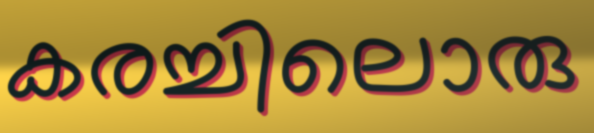
കരച്ചിലൊരു